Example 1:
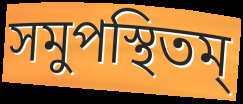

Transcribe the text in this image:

সমুপস্থিতম্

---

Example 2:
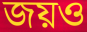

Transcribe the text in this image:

জয়ও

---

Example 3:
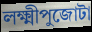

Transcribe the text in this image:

লক্ষ্মীপুজোটা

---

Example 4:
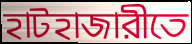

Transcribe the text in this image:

হাটহাজারীতে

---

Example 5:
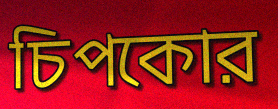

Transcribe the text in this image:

চিপকোর